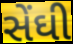
સેંઘી